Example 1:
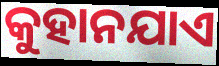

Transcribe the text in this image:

କୁହାନଯାଏ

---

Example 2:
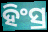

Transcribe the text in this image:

ହିଂସ୍ର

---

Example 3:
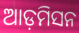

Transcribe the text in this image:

ଆଡ଼ମିସନ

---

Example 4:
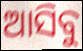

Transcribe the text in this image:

ଆସିବୁ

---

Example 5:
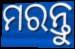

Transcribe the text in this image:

ମରନ୍ତୁ